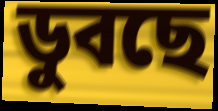
ডুবছে